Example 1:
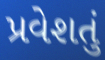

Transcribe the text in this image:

પ્રવેશતું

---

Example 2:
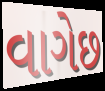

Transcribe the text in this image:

વાગેછ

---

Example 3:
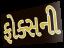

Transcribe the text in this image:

ફોક્સની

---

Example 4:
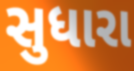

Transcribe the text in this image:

સુધારા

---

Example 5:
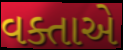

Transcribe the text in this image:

વક્તાએ